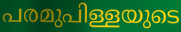
പരമുപിള്ളയുടെ